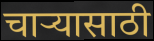
चार्‍यासाठी